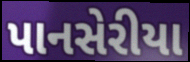
પાનસેરીયા